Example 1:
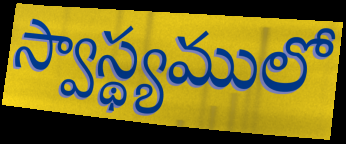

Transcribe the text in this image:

స్వాస్థ్యములో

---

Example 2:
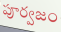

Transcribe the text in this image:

పూర్వజం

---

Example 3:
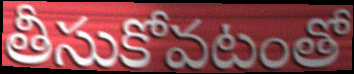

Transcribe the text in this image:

తీసుకోవటంతో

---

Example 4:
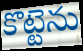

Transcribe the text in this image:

కొట్టెను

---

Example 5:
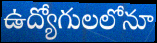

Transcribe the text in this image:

ఉద్యోగులలోనూ